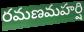
రమణమహర్షి